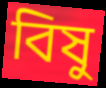
বিষু